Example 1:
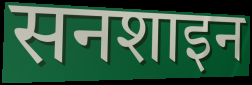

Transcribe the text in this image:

सनशाइन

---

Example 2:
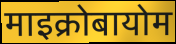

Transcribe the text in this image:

माइक्रोबायोम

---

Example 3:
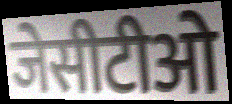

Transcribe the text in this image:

जेसीटीओ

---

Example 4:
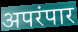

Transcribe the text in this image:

अपरंपार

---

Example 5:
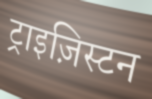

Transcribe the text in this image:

ट्राइज़िस्टन